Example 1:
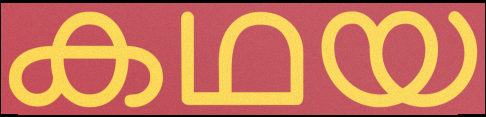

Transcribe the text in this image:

കഥയ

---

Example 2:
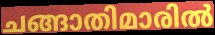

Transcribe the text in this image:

ചങ്ങാതിമാരിൽ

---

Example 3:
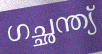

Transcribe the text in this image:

ഗച്ഛന്ത്യ്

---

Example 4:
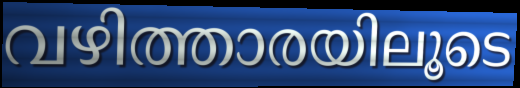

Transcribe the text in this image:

വഴിത്താരയിലൂടെ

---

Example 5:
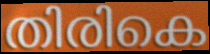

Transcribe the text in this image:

തിരികെ